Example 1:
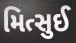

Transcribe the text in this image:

મિત્સુઈ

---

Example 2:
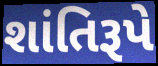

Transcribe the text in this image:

શાંતિરૂપે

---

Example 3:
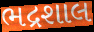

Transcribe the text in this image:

ભદ્રશાલ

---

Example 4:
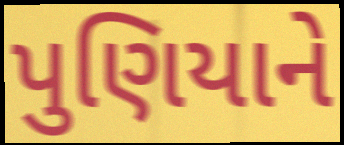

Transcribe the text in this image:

પુણિયાને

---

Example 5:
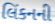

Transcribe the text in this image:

લિંકનની